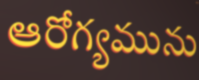
ఆరోగ్యమును